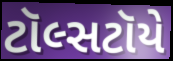
ટૉલ્સટૉયે